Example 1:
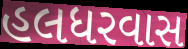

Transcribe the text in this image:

હલધરવાસ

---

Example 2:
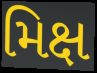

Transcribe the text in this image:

મિક્ષ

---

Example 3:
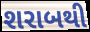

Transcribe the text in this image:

શરાબથી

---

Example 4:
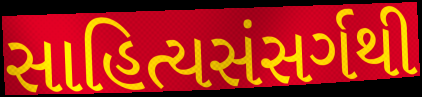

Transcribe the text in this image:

સાહિત્યસંસર્ગથી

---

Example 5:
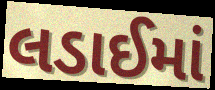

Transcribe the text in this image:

લડાઈમાં